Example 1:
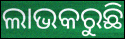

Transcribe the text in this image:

ଲାଭକରୁଛି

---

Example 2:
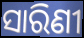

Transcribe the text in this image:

ସାରିଣୀ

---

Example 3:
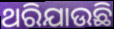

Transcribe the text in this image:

ଥରିଯାଉଛି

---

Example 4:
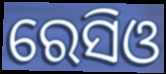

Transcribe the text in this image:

ରେସିଓ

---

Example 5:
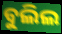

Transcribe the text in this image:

ବୁଲିଲ